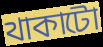
থাকাটো